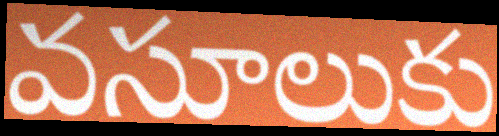
వసూలుకు